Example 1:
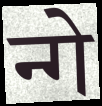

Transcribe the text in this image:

न्गे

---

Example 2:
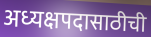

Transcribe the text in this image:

अध्यक्षपदासाठीची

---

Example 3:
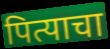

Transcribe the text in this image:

पित्याचा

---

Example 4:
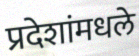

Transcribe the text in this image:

प्रदेशांमधले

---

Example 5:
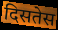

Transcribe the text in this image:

दिसतेस